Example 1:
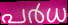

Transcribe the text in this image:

പർധ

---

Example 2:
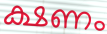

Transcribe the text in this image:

ക്ഷണം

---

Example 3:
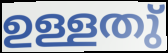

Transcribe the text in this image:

ഉള്ളതു്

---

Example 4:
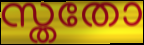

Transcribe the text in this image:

സ്തതോ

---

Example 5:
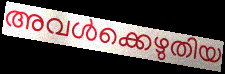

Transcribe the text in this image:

അവൾക്കെഴുതിയ